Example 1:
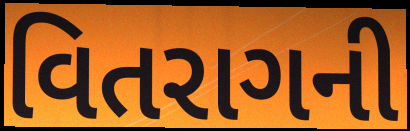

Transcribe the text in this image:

વિતરાગની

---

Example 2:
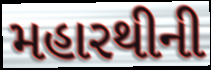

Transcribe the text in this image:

મહારથીની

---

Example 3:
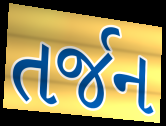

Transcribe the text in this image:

તર્જન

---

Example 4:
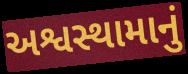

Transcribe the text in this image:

અશ્વસ્થામાનું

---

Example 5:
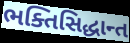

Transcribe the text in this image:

ભક્તિસિદ્ધાન્ત